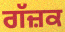
ਗੱਜ਼ਕ